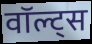
वॉल्ट्स